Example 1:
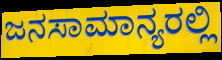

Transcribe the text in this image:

ಜನಸಾಮಾನ್ಯರಲ್ಲಿ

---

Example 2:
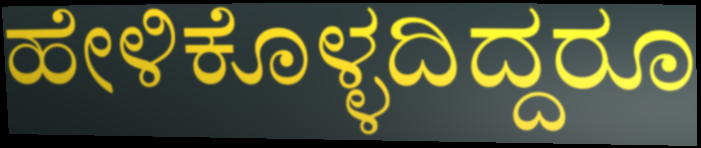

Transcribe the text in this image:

ಹೇಳಿಕೊಳ್ಳದಿದ್ದರೂ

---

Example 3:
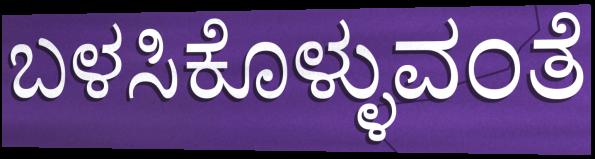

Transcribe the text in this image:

ಬಳಸಿಕೊಳ್ಳುವಂತೆ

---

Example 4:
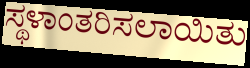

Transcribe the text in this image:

ಸ್ಥಳಾಂತರಿಸಲಾಯಿತು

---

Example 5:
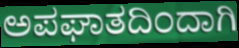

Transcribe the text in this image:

ಅಪಘಾತದಿಂದಾಗಿ